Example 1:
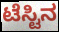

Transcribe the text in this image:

ಟೆಸ್ಟಿನ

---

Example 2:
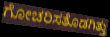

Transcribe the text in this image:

ಗೋಚರಿಸತೊಡಗಿತ್ತು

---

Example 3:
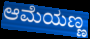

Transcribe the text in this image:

ಆಮೆಯಣ್ಣ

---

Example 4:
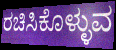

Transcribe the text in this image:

ರಚಿಸಿಕೊಳ್ಳುವ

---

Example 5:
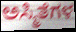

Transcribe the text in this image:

ಅಸ್ಮಿತೆಗಳ